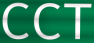
CCT